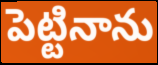
పెట్టినాను